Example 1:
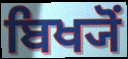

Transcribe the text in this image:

ਬਿਖ੍ਯੋਂ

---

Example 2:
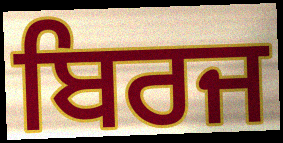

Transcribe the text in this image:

ਬਿਰਜ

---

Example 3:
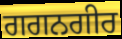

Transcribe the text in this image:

ਗਗਨਗੀਰ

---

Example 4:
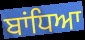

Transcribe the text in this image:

ਬਾਂਧਿਆ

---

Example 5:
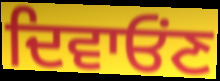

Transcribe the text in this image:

ਦਿਵਾਓੰਣ